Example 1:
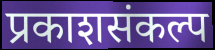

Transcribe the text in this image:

प्रकाशसंकल्प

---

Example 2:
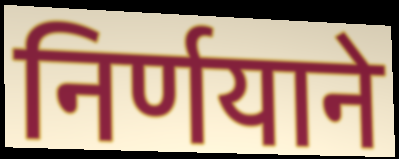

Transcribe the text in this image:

निर्णयाने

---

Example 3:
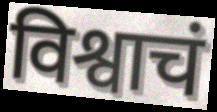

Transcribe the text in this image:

विश्वाचं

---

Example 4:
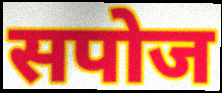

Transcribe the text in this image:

सपोज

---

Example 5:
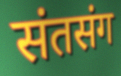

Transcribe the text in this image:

संतसंग